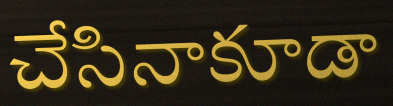
చేసినాకూడా